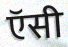
ऍसी